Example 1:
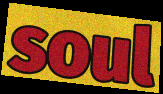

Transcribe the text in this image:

soul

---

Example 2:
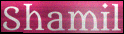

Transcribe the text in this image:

Shamil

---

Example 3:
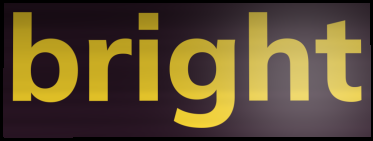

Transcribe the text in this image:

bright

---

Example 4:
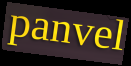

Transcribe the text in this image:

panvel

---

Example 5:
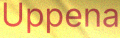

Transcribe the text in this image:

Uppena